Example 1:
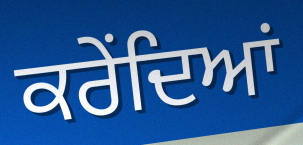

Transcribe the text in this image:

ਕਰੇਂਦਿਆਂ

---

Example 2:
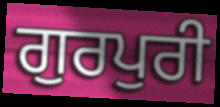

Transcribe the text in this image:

ਗੁਰਪੁਰੀ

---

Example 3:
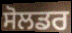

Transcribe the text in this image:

ਸੋਲਡਰ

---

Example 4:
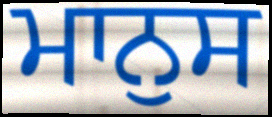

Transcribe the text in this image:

ਮਾਨੁਸ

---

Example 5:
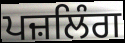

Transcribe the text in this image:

ਪਜ਼ਲਿੰਗ